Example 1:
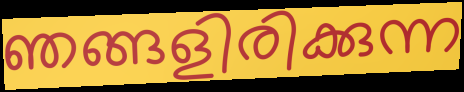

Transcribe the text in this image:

ഞങ്ങളിരിക്കുന്ന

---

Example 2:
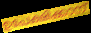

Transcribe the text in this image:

ഉപേക്ഷിക്കാന്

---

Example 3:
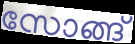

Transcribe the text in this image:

സോങ്ങ്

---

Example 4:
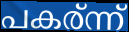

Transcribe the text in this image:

പകര്ന്ന്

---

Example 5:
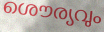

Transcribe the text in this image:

ശൌര്യവും